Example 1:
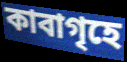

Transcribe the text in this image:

কাবাগৃহে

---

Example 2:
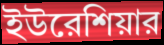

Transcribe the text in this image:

ইউরেশিয়ার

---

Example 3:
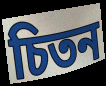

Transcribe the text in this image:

চিতন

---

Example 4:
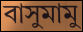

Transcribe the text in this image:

বাসুমামু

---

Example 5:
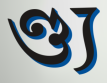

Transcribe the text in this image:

ণ্ড্য